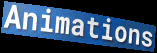
Animations